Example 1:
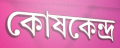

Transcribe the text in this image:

কোষকেন্দ্ৰ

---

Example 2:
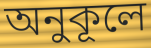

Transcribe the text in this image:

অনুকূলে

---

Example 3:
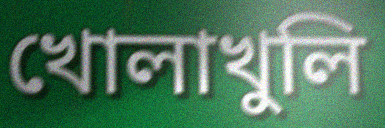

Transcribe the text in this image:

খোলাখুলি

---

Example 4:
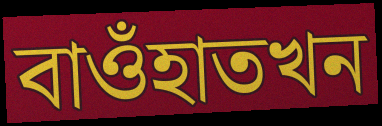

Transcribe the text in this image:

বাওঁহাতখন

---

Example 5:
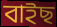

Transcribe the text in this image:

বাইছ